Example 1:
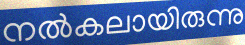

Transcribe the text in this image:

നൽകലായിരുന്നു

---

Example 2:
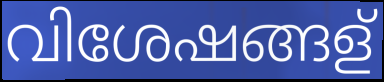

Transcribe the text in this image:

വിശേഷങ്ങള്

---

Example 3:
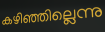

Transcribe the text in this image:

കഴിഞ്ഞില്ലെന്നു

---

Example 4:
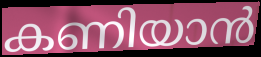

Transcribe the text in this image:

കണിയാൻ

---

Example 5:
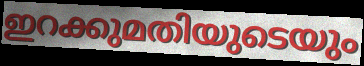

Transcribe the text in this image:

ഇറക്കുമതിയുടെയും